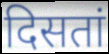
दिसतां